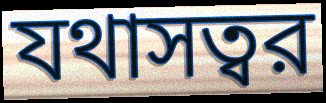
যথাসত্বর